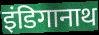
इंडिगानाथ